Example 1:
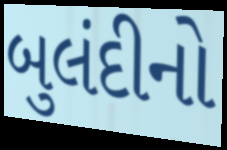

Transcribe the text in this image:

બુલંદીનો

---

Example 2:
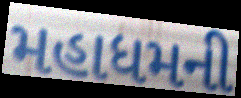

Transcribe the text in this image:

મહાધમની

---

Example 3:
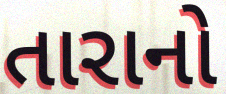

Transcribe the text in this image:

તારાનો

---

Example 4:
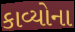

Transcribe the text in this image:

કાવ્યોના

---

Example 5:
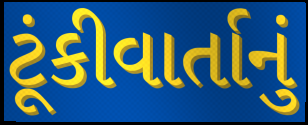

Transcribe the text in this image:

ટૂંકીવાર્તાનું